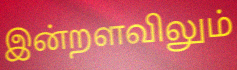
இன்றளவிலும்